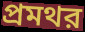
প্রমথর